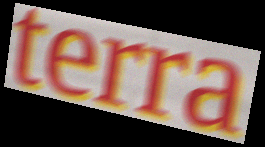
terra